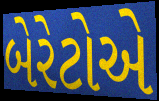
બેરેટોએ